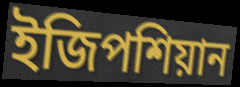
ইজিপশিয়ান